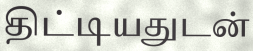
திட்டியதுடன்